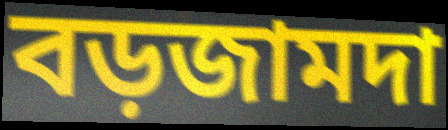
বড়জামদা